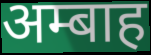
अम्बाह